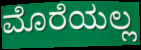
ಮೊರೆಯಲ್ಲ